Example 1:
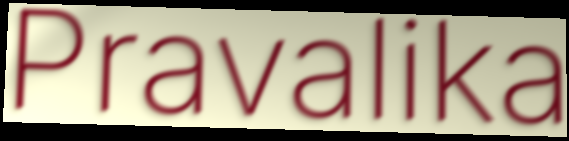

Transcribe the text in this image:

Pravalika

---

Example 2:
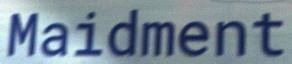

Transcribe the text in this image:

Maidment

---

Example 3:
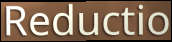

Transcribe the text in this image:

Reductio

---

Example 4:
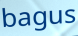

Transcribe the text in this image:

bagus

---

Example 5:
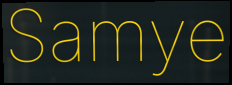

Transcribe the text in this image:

Samye